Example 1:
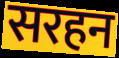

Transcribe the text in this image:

सरहन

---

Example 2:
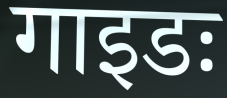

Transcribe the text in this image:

गाइडः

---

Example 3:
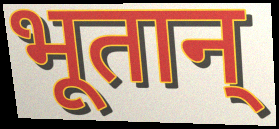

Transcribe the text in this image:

भूतान्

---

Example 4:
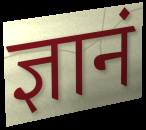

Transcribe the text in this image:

ज्ञानं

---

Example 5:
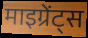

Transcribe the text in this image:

माइग्रेंट्स